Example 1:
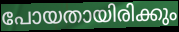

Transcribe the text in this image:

പോയതായിരിക്കും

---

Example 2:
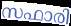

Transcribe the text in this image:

സഫാരി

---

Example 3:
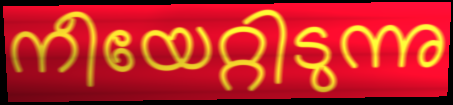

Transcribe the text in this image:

നീയേറ്റിടുന്നു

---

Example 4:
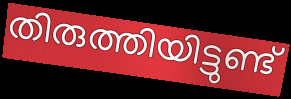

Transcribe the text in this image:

തിരുത്തിയിട്ടുണ്ട്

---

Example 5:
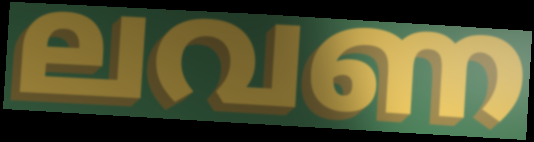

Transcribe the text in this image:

ലവണ